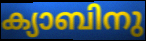
ക്യാബിനു